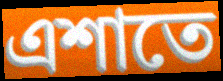
এশাতে